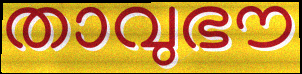
താവുഭൗ